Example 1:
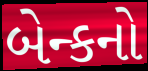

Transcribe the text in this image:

બેન્કનો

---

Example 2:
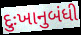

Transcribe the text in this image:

દુઃખાનુબંધી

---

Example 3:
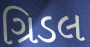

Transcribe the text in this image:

ગ્રિડલ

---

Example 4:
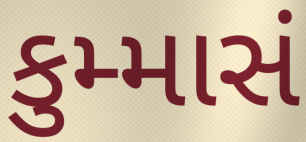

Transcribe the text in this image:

કુમ્માસં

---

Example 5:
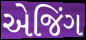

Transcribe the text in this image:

એજિંગ